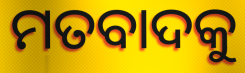
ମତବାଦକୁ